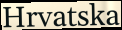
Hrvatska